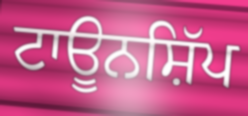
ਟਾਊਨਸ਼ਿੱਪ